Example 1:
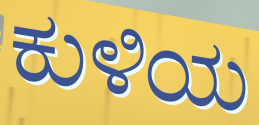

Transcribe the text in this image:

ಕುಳಿಯ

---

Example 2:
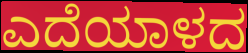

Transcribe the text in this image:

ಎದೆಯಾಳದ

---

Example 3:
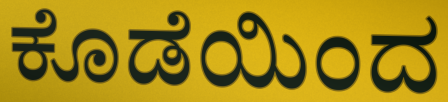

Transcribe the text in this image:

ಕೊಡೆಯಿಂದ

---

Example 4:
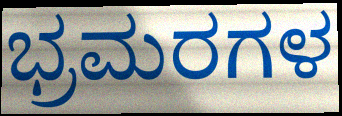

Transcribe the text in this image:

ಭ್ರಮರಗಳ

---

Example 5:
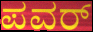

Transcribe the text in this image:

ಪವರ್